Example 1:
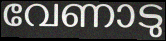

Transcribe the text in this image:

വേണാടു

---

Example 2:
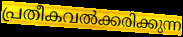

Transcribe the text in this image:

പ്രതീകവൽക്കരിക്കുന്ന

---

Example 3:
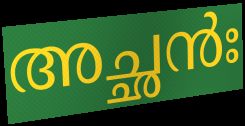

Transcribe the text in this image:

അച്ഛൻഃ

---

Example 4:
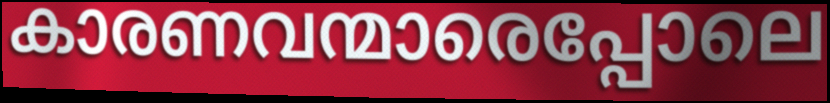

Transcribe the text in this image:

കാരണവന്മാരെപ്പോലെ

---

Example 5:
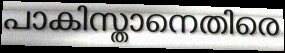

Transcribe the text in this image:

പാകിസ്താനെതിരെ